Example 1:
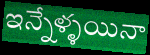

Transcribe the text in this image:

ఇన్నేళ్ళయినా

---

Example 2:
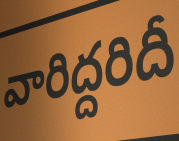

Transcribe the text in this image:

వారిద్దరిదీ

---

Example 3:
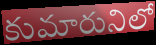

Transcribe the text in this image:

కుమారునిలో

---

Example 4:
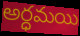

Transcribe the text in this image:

అర్ధమయి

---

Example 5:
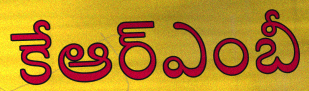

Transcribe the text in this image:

కేఆర్ఎంబీ